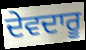
ਦੇਵਦਾਰੂ